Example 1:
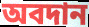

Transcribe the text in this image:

অবদান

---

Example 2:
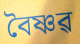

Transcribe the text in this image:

বৈষ্ণৱ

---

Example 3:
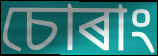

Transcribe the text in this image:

চোৰাং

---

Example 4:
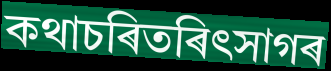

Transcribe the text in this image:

কথাচৰিতৰিৎসাগৰ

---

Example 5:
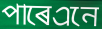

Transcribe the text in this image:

পাৰেএনে